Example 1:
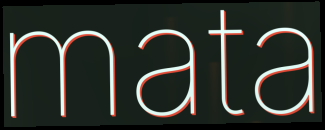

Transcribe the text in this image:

mata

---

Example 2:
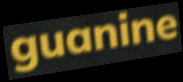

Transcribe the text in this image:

guanine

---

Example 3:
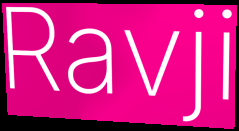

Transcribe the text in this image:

Ravji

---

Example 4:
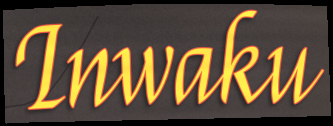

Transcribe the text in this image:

Inwaku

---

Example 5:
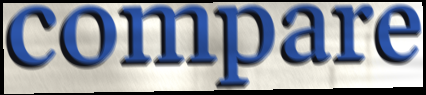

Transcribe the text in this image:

compare